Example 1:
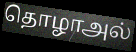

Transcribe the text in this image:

தொழாஅல்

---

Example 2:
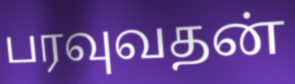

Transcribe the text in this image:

பரவுவதன்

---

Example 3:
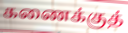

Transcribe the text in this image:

கணைக்குத்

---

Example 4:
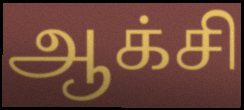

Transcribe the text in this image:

ஆக்சி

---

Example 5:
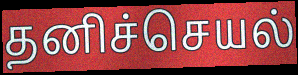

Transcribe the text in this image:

தனிச்செயல்